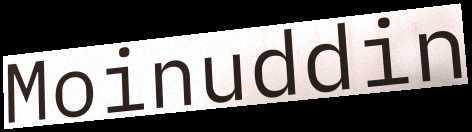
Moinuddin